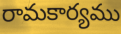
రామకార్యము